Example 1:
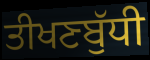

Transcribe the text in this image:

ਤੀਖਣਬੁੱਧੀ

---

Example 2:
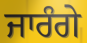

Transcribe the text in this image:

ਜਾਰੰਗੇ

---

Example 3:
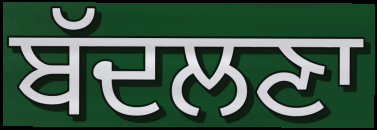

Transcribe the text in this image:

ਬੱਦਲਣਾ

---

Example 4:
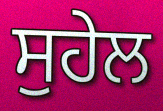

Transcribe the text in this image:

ਸੁਹੇਲ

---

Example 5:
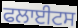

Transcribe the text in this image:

ਫਲਾਈਟਸ